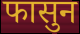
फासुन